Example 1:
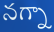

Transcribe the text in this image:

నగ్నా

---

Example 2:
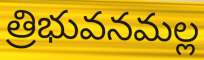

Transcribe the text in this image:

త్రిభువనమల్ల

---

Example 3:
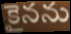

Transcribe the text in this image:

కైనను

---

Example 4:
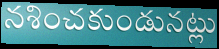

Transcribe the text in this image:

నశించకుండునట్లు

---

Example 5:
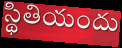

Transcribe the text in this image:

స్థితియందు